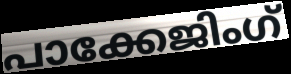
പാക്കേജിംഗ്